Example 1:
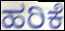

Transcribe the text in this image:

ಹರಿಕೆ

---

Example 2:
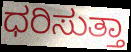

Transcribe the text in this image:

ಧರಿಸುತ್ತಾ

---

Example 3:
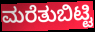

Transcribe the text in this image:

ಮರೆತುಬಿಟ್ಟಿ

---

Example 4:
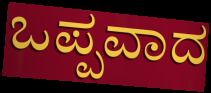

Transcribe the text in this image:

ಒಪ್ಪವಾದ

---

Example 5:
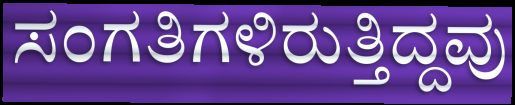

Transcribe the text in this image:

ಸಂಗತಿಗಳಿರುತ್ತಿದ್ದವು